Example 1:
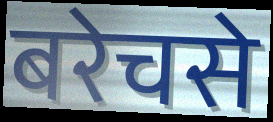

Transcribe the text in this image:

बरेचसे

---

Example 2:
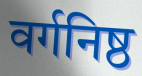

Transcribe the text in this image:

वर्गनिष्ठ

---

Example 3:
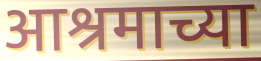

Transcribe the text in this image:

आश्रमाच्या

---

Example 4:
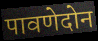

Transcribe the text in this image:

पावणेदोन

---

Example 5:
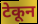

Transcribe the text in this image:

टेकून